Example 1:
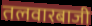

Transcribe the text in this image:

तलवारबाजी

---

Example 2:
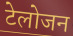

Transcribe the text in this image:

टेलोजन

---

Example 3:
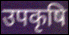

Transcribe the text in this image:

उपकृषि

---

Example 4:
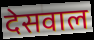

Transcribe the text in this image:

देसवाल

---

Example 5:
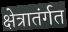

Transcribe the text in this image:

क्षेत्रातंर्गत